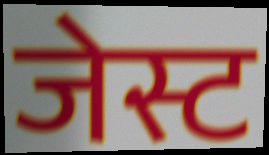
जेस्‍ट